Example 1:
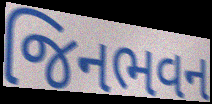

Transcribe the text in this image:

જિનભવન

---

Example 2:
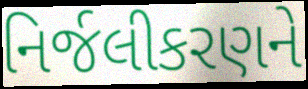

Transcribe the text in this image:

નિર્જલીકરણને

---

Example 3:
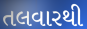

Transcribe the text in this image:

તલવારથી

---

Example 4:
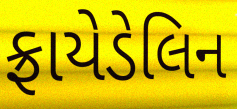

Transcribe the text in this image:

ફ્રાયેડેલિન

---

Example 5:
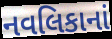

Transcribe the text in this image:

નવલિકાનાં